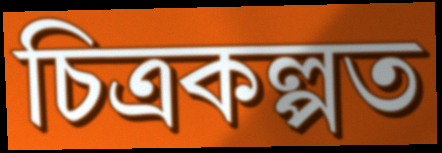
চিত্ৰকল্পত